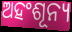
ଅହଂଶୂନ୍ୟ